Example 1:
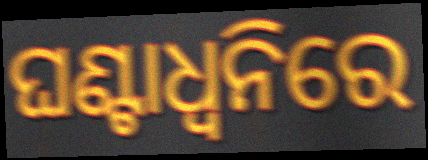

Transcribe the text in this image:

ଘଣ୍ଟାଧ୍ୱନିରେ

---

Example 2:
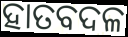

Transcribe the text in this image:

ହାତବଦଳ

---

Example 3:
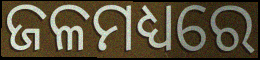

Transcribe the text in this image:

ଜଳମଧ୍ଯରେ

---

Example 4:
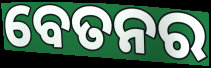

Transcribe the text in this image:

ବେତନର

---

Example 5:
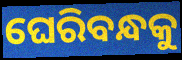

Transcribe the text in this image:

ଘେରିବନ୍ଧକୁ